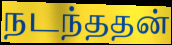
நடந்ததன்